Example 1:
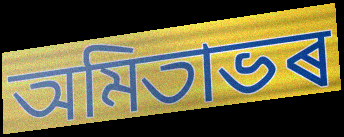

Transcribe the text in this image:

অমিতাভৰ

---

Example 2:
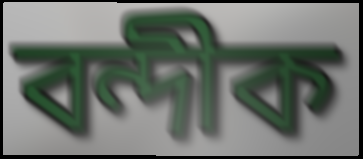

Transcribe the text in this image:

বন্দীক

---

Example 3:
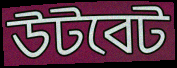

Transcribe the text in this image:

উটবেট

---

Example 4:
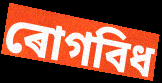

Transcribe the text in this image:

ৰোগবিধ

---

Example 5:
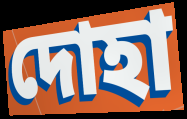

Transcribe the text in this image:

দোহা